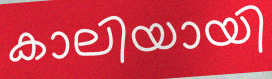
കാലിയായി